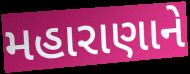
મહારાણાને